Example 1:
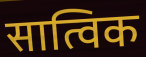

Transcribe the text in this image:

सात्विक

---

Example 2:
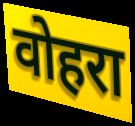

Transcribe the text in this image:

वोहरा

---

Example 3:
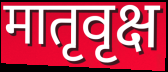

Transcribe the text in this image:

मातृवृक्ष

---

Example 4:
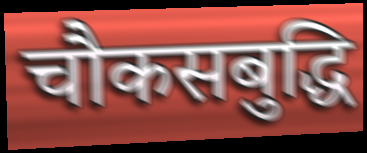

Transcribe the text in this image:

चौकसबुद्धि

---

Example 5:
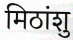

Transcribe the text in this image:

मिठांशु